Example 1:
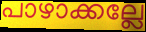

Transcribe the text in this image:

പാഴാക്കല്ലേ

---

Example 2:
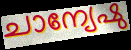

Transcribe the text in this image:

ചാന്യേഷു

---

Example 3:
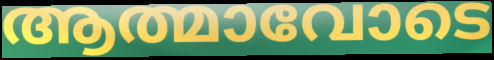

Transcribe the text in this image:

ആത്മാവോടെ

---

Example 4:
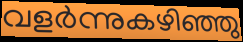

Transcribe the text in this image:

വളർന്നുകഴിഞ്ഞു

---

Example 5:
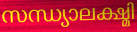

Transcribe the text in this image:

സന്ധ്യാലക്ഷ്മി